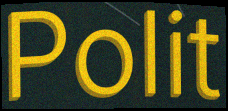
Polit